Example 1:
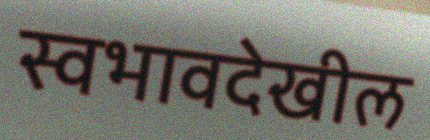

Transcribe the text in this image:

स्वभावदेखील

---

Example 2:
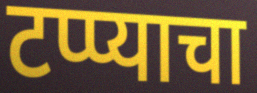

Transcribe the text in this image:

टप्प्याचा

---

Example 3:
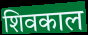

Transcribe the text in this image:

शिवकाल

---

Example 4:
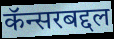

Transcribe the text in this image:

कॅन्सरबद्दल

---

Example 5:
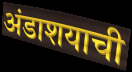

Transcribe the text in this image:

अंडाशयाची